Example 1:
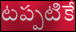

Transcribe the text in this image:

టప్పటికే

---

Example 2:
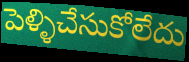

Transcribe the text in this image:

పెళ్ళిచేసుకోలేదు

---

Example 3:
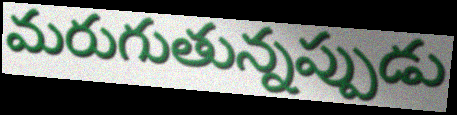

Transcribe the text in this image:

మరుగుతున్నప్పుడు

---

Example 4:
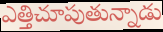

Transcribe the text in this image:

ఎత్తిచూపుతున్నాడు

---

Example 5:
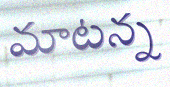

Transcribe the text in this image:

మాటన్న